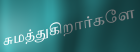
சுமத்துகிறார்களே